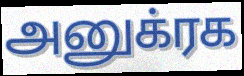
அனுக்ரக